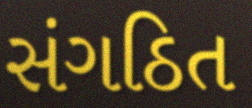
સંગઠિત